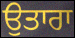
ਉਤਾਰਾ